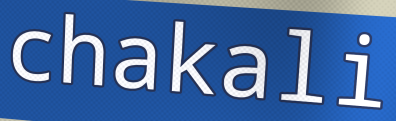
chakali